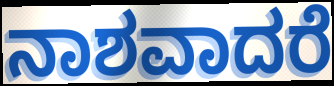
ನಾಶವಾದರೆ